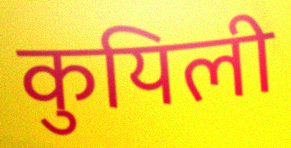
कुयिली